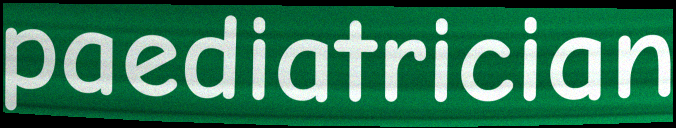
paediatrician